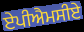
ਏਪੀਐਮਸੀਏ